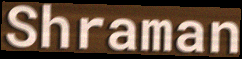
Shraman